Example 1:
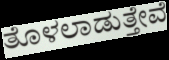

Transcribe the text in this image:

ತೊಳಲಾಡುತ್ತೇವೆ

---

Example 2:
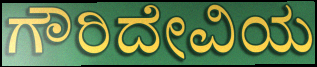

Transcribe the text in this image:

ಗೌರಿದೇವಿಯ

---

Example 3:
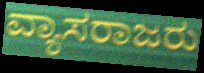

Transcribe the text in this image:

ವ್ಯಾಸರಾಜರು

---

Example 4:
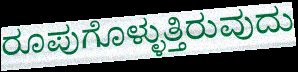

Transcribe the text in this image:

ರೂಪುಗೊಳ್ಳುತ್ತಿರುವುದು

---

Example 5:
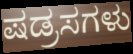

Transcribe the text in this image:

ಷಡ್ರಸಗಳು